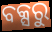
ବକ୍ସରୁ